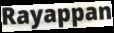
Rayappan